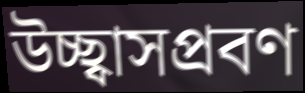
উচ্ছ্বাসপ্রবণ